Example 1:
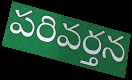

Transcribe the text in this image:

పరివర్తన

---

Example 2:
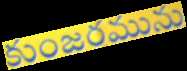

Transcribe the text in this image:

కుంజరమును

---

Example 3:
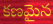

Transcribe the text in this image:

కణమైన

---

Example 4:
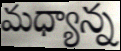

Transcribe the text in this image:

మధ్యాన్న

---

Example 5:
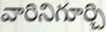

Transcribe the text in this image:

వారినిగూర్చి